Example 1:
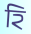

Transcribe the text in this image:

হি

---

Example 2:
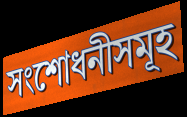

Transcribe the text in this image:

সংশোধনীসমূহ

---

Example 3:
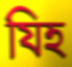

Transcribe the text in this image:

যিহ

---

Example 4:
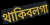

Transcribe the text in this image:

থাকিবলগা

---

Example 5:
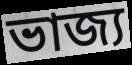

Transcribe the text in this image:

ভাজ্য